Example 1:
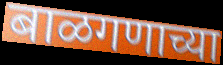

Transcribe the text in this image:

बाळगणाच्या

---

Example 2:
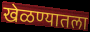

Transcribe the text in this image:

खेळण्यातला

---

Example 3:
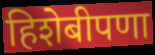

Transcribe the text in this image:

हिशेबीपणा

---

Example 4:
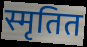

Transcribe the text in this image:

स्मृतित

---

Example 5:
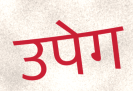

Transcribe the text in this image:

उपेग